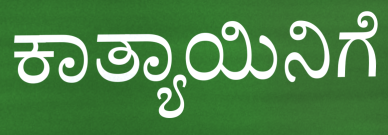
ಕಾತ್ಯಾಯಿನಿಗೆ